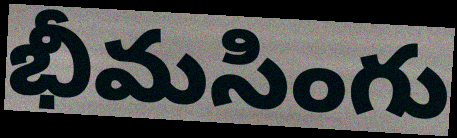
భీమసింగు